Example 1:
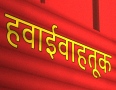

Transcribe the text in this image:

हवाईवाहतूक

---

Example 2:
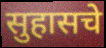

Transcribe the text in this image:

सुहासचे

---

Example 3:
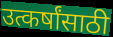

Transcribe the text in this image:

उत्कर्षांसाठी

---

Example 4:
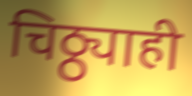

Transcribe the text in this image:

चिठ्ठ्याही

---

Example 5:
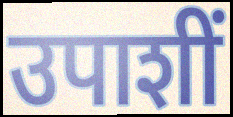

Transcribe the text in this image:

उपाशीं